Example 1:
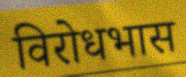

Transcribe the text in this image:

विरोधभास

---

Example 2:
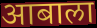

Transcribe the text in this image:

आबाला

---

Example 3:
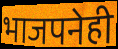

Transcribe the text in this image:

भाजपनेही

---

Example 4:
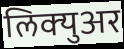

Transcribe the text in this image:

लिक्युअर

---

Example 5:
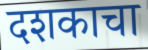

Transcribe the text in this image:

दशकाचा